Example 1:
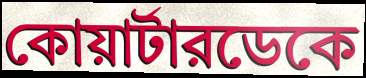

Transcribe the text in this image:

কোয়ার্টারডেকে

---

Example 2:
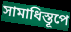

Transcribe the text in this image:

সামাধিস্তূপে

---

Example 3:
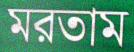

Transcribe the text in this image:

মরতাম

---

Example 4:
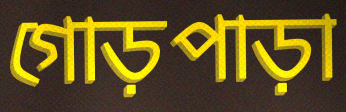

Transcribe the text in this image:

গোড়পাড়া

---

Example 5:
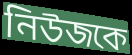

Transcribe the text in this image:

নিউজকে